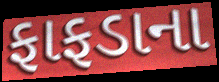
ફાફડાના